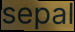
sepal